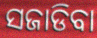
ସଜାଡିବା